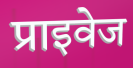
प्राइवेज